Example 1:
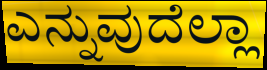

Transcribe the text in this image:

ಎನ್ನುವುದೆಲ್ಲಾ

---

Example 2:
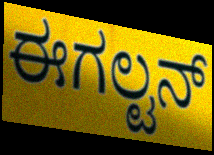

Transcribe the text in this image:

ಈಗಲ್ಟನ್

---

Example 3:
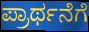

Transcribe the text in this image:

ಪ್ರಾರ್ಥನೆಗೆ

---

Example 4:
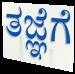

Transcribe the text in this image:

ತಜ್ಞೆಗೆ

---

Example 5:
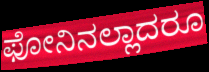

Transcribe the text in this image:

ಫೋನಿನಲ್ಲಾದರೂ